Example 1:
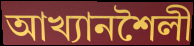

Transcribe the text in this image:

আখ্যানশৈলী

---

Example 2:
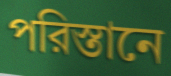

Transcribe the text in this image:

পরিস্তানে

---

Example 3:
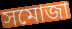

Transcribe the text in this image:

সমোজা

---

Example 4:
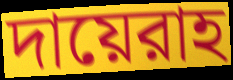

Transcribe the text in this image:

দায়েরাহ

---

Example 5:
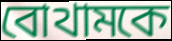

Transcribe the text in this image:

বোথামকে